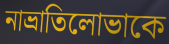
নাভ্রাতিলোভাকে